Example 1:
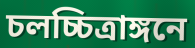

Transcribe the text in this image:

চলচ্চিত্রাঙ্গনে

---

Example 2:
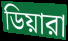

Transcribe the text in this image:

ডিয়ারা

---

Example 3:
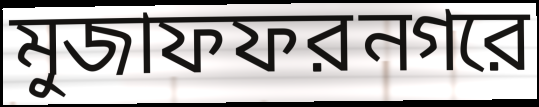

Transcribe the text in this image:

মুজাফফরনগরে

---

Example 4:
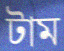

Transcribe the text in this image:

টাম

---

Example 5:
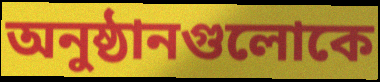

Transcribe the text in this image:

অনুষ্ঠানগুলোকে